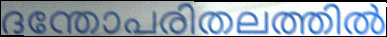
ദന്തോപരിതലത്തിൽ